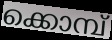
ക്കൊമ്പ്